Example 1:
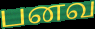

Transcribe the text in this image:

பனவ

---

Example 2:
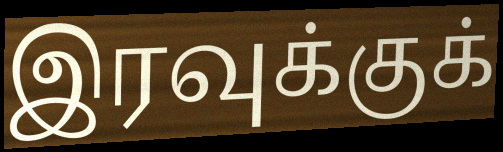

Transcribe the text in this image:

இரவுக்குக்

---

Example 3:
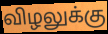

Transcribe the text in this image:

விழலுக்கு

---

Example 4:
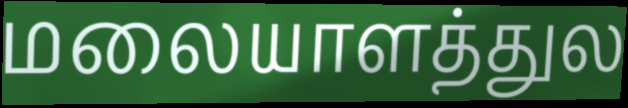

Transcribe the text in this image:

மலையாளத்துல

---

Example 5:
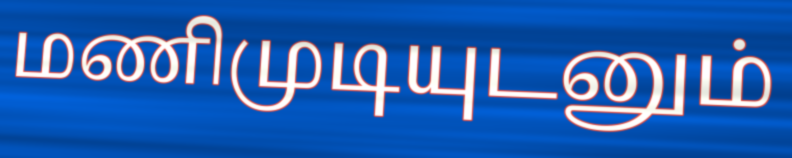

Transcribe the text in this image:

மணிமுடியுடனும்